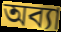
অব্যা